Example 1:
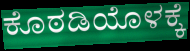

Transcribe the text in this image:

ಕೊಠಡಿಯೊಳಕ್ಕೆ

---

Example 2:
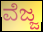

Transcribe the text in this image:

ವೆಜ್ಜ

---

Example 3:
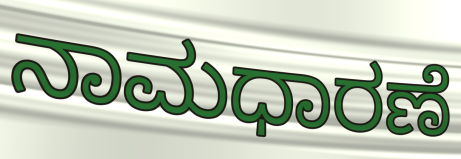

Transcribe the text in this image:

ನಾಮಧಾರಣೆ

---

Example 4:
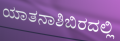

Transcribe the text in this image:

ಯಾತನಾಶಿಬಿರದಲ್ಲಿ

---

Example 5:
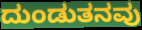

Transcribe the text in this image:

ದುಂಡುತನವು